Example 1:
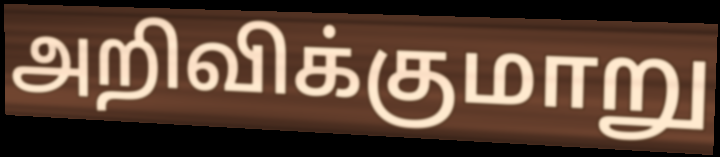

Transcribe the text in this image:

அறிவிக்குமாறு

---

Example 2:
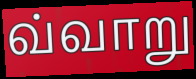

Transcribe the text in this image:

வ்வாறு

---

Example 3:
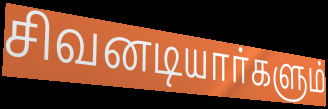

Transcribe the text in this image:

சிவனடியார்களும்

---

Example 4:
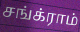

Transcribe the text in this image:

சங்க்ராம்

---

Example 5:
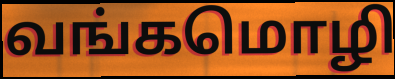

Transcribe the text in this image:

வங்கமொழி